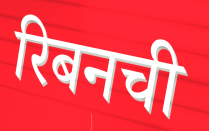
रिबनची